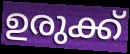
ഉരുക്ക്